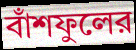
বাঁশফুলের